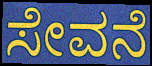
ಸೇವನೆ